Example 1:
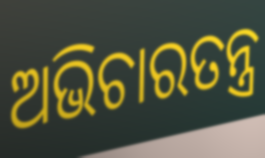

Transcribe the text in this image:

ଅଭିଚାରତନ୍ତ୍ର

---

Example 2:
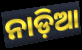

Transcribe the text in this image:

ନାଡ଼ିଆ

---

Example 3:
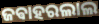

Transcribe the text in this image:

ଜଵାହରଲାଲ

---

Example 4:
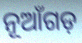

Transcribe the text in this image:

ନୂଆଁଗଡ଼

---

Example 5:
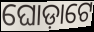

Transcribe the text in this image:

ଘୋଡ଼ାଟେ